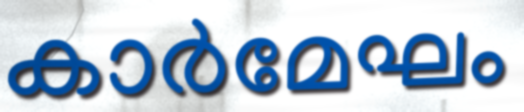
കാർമേഘം